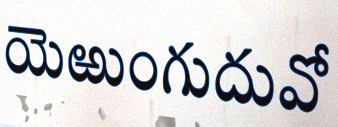
యెఱుంగుదువో